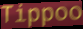
Tippoo